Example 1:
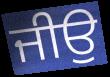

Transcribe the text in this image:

ਜੀਉ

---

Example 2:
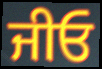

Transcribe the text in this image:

ਜੀਓ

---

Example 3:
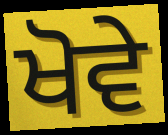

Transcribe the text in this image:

ਖੋਵੇ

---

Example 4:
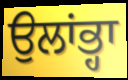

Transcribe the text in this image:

ਉਲਾਂਭ੍ਹਾ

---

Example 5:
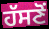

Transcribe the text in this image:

ਹੱਸਣੋਂ